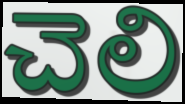
చెలి